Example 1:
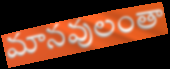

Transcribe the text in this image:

మానవులంతా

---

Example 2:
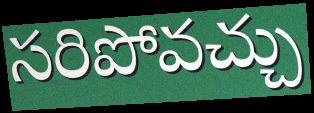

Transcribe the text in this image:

సరిపోవచ్చు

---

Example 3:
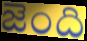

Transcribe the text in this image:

జెంది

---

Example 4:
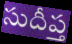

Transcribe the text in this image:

సుదీప్త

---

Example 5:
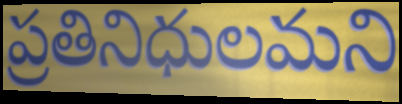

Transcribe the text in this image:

ప్రతినిధులమని